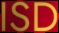
ISD